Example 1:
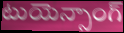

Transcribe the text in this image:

టుయెన్సాంగ్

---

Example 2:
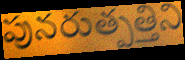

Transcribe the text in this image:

పునరుత్పత్తిని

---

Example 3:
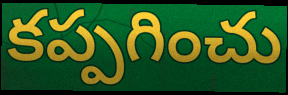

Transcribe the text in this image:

కప్పగించు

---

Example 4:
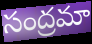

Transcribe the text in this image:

సంద్రమా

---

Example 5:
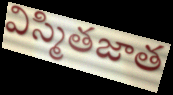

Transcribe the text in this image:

విస్మితజాత